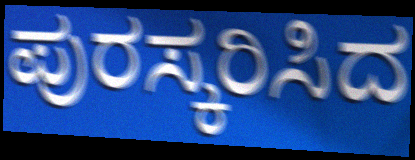
ಪುರಸ್ಕರಿಸಿದ